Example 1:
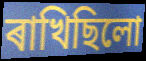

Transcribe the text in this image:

ৰাখিছিলো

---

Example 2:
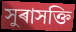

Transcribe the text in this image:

সুৰাসক্তি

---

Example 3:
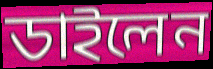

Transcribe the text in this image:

ডাইলেন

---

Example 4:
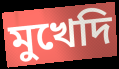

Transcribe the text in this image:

মুখেদি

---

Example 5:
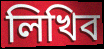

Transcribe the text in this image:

লিখিব